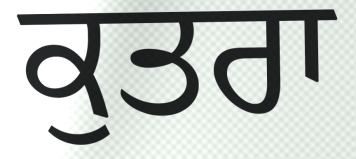
ਕੁਤਰਾ